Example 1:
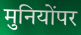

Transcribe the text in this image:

मुनियोंपर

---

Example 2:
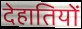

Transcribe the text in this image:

देहातियों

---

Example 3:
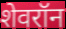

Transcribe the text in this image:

शेवरॉन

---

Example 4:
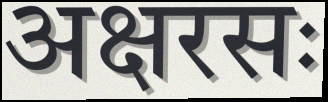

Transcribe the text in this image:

अक्षरसः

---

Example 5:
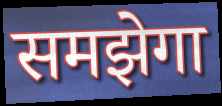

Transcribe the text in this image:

समझेगा